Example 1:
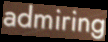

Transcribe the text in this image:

admiring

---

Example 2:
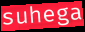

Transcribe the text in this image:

suhega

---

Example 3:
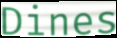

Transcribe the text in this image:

Dines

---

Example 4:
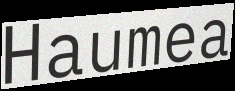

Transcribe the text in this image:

Haumea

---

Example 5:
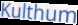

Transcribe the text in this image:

Kulthum